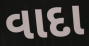
વાદા